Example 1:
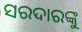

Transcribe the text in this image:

ସରଦାରଙ୍କୁ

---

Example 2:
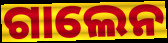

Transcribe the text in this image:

ଗାଲେନ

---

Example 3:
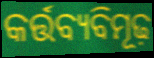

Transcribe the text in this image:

କର୍ତ୍ତବ୍ୟବିମୂଢ଼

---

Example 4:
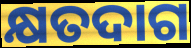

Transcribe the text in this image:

କ୍ଷତଦାଗ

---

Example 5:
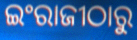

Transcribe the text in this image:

ଇଂରାଜୀଠାରୁ